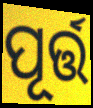
ପୂର୍ତ୍ତ